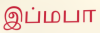
இப்மபா